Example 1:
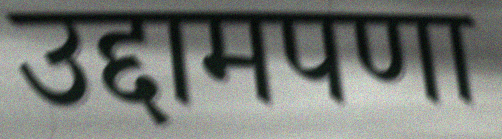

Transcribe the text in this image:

उद्दामपणा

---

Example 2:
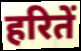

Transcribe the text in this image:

हरितें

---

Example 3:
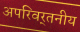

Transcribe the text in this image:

अपरिवर्तनीय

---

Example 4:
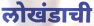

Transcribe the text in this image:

लोखंडाची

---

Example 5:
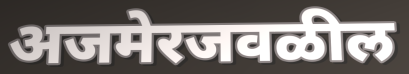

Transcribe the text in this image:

अजमेरजवळील